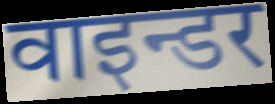
वाइन्डर